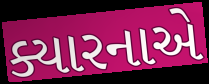
ક્યારનાએ